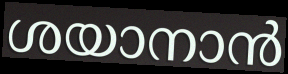
ശയാനാൻ